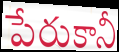
పేరుకానీ